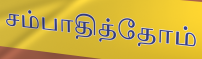
சம்பாதித்தோம்